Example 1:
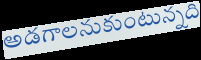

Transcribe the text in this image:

అడగాలనుకుంటున్నది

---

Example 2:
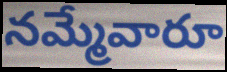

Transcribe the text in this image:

నమ్మేవారూ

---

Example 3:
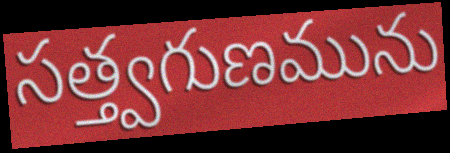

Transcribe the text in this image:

సత్త్వగుణమును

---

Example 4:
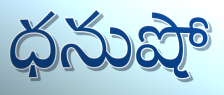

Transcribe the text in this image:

ధనుషో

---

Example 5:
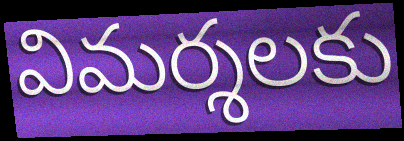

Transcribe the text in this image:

విమర్శలకు